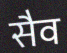
सैव